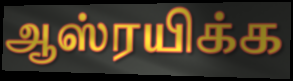
ஆஸ்ரயிக்க